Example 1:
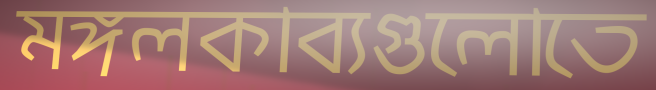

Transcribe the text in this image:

মঙ্গলকাব্যগুলোতে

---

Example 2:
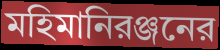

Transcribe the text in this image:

মহিমানিরঞ্জনের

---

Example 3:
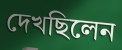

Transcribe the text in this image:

দেখছিলেন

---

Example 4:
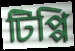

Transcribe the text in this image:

টিপ্পি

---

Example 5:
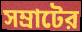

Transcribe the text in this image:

সম্রাটের